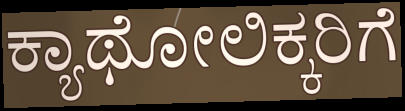
ಕ್ಯಾಥೋಲಿಕ್ಕರಿಗೆ